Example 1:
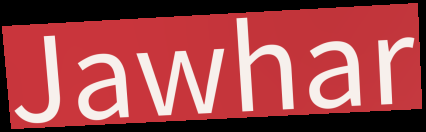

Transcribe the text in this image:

Jawhar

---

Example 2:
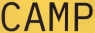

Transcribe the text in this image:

CAMP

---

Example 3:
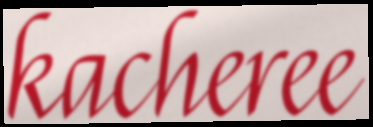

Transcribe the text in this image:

kacheree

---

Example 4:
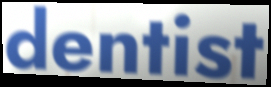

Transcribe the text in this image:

dentist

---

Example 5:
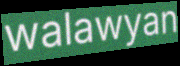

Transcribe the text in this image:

walawyan